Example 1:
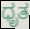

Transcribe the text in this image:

ಧೃತ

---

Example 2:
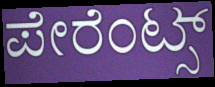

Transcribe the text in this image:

ಪೇರೆಂಟ್ಸ್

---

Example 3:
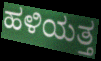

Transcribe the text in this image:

ಹಳಿಯತ್ತ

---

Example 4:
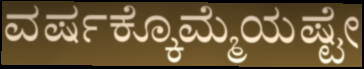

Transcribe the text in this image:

ವರ್ಷಕ್ಕೊಮ್ಮೆಯಷ್ಟೇ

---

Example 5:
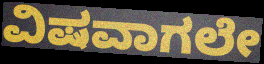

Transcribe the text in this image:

ವಿಷವಾಗಲೇ